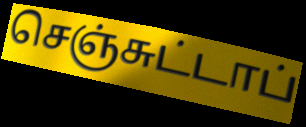
செஞ்சுட்டாப்